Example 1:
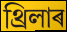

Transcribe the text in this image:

থ্ৰিলাৰ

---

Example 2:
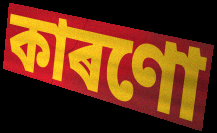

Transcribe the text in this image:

কাৰণো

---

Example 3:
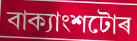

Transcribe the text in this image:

বাক্যাংশটোৰ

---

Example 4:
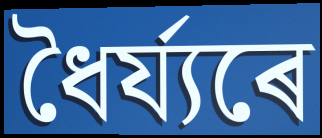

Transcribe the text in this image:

ধৈৰ্য্যৰে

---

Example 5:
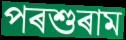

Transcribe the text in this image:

পৰশুৰাম